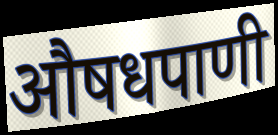
औषधपाणी